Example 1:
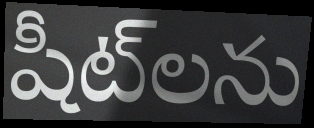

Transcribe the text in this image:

షీట్‌లను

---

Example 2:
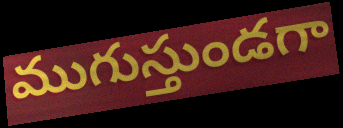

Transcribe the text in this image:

ముగుస్తుండగా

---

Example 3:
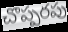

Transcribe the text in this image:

చొప్పరపు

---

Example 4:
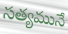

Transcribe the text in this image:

సత్యమునే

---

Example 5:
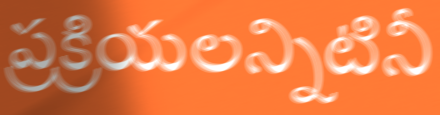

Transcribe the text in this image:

ప్రక్రియలన్నిటినీ